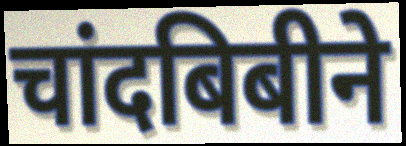
चांदबिबीने